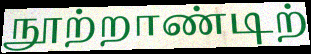
நூற்றாண்டிற்